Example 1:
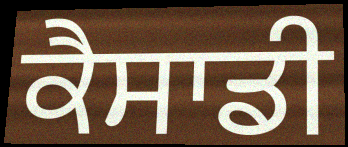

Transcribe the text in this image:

ਕੈਸਾਡੀ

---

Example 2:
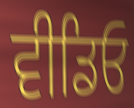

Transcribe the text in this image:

ਵੀਡਿਓ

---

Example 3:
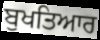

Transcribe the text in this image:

ਬੁਖਤਿਆਰ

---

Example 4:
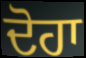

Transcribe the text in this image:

ਦੋਹਾ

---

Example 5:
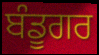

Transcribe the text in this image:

ਬੰਡੂਗਰ